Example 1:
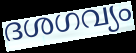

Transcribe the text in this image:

ദശഗവ്യം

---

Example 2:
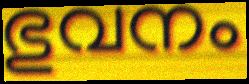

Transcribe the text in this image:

ഭുവനം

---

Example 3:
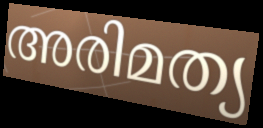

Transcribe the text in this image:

അരിമത്യ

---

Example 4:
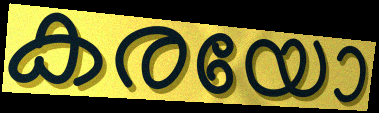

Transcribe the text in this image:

കരയോ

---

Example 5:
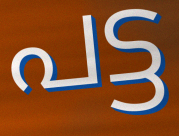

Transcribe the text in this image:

പട്ട